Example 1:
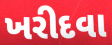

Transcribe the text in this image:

ખરીદવા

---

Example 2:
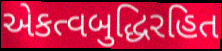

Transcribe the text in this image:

એકત્વબુદ્ધિરહિત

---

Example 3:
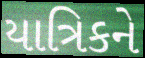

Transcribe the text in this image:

યાત્રિકને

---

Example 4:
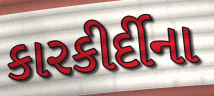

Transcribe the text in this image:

કારકીર્દીના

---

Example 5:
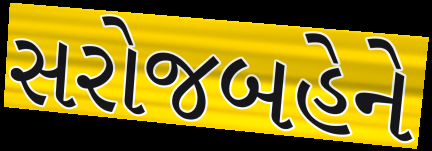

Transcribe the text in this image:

સરોજબહેને